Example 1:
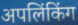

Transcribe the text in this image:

अपलिंकिंग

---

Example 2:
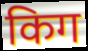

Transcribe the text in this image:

किग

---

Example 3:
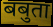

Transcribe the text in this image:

बबुता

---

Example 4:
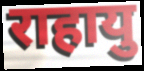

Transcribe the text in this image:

राहायु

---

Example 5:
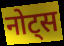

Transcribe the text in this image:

नोट्स